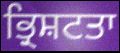
ਭ੍ਰਿਸ਼ਟਤਾ